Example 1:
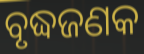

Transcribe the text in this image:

ବୃଦ୍ଧଜଣକ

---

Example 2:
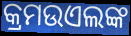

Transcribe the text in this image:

କ୍ରମଉଏଲଙ୍କ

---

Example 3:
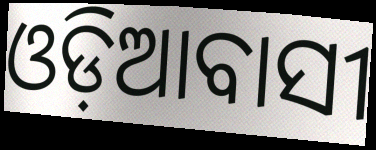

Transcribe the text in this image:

ଓଡ଼ିଆବାସୀ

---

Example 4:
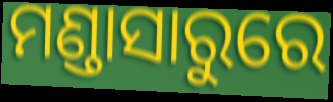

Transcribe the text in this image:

ମଣ୍ଡାସାରୁରେ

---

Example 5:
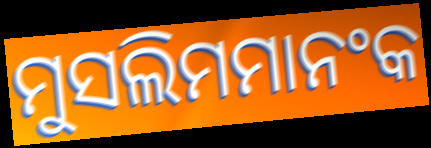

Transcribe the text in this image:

ମୁସଲିମମାନଂକ